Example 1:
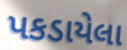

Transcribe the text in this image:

પકડાયેલા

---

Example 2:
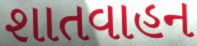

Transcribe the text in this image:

શાતવાહન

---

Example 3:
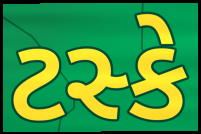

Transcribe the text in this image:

ટસ્કે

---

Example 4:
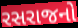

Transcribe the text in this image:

રસરાજનો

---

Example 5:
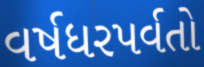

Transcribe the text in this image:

વર્ષધરપર્વતો